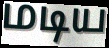
மடிய